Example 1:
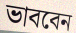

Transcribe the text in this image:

ভাববেন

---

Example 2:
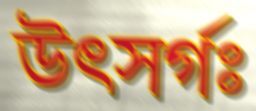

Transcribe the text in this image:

উৎসর্গঃ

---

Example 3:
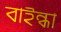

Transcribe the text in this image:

বাইন্ধা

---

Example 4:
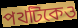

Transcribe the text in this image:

পথটিকেও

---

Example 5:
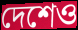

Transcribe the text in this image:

দেশেও